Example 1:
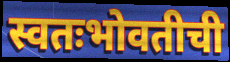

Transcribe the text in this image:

स्वतःभोवतीची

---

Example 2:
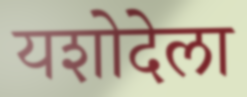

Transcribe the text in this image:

यशोदेला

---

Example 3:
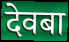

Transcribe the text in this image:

देवबा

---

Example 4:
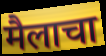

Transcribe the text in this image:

मैलाचा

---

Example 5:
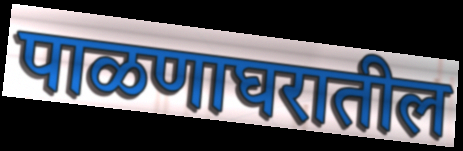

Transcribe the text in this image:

पाळणाघरातील